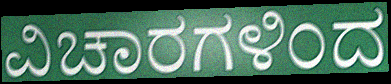
ವಿಚಾರಗಳಿಂದ